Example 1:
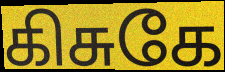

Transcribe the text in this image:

கிசுகே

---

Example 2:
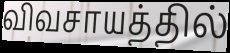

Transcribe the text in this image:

விவசாயத்தில்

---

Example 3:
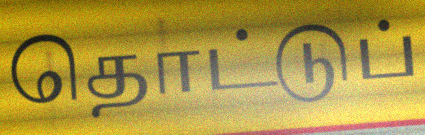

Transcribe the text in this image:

தொட்டுப்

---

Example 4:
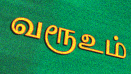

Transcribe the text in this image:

வரூஉம்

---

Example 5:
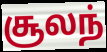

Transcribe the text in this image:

சூலந்